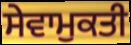
ਸੇਵਾਮੁਕਤੀ